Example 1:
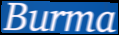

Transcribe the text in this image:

Burma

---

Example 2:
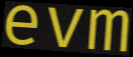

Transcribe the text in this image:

evm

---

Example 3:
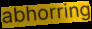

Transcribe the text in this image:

abhorring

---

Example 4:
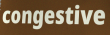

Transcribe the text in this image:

congestive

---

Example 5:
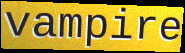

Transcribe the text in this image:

vampire